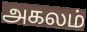
அகலம்